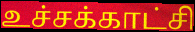
உச்சக்காட்சி